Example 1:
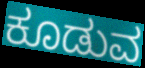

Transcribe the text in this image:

ಕೂಡುವ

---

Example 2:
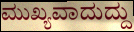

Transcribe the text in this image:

ಮುಖ್ಯವಾದುದ್ದು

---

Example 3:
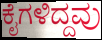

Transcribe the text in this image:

ಕೈಗಳಿದ್ದವು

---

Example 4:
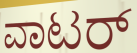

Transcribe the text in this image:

ವಾಟರ್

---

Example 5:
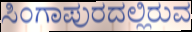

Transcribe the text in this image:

ಸಿಂಗಾಪುರದಲ್ಲಿರುವ